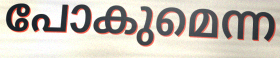
പോകുമെന്ന